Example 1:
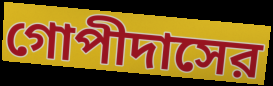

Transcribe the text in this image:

গোপীদাসের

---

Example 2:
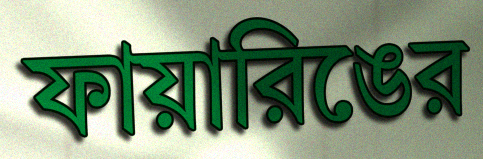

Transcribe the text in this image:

ফায়ারিঙের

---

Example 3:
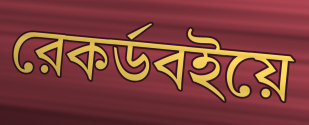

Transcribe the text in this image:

রেকর্ডবইয়ে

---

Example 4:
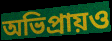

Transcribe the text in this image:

অভিপ্রায়ও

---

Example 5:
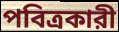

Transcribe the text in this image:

পবিত্রকারী